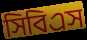
সিবিএস